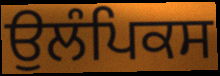
ਉਲੰਪਿਕਸ